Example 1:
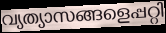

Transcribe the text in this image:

വ്യത്യാസങ്ങളെപ്പറ്റി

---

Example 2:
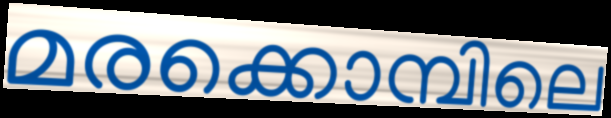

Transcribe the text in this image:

മരക്കൊമ്പിലെ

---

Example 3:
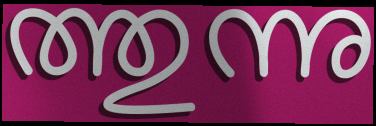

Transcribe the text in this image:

ത്തുന്നു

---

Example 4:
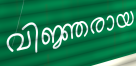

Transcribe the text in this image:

വിജ്ഞരായ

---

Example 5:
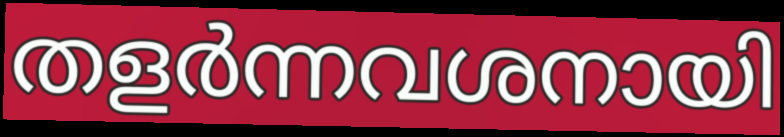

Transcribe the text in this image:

തളർന്നവശനായി